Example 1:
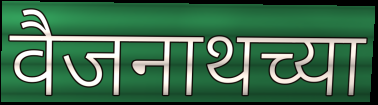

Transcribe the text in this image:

वैजनाथच्या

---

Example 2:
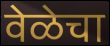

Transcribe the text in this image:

वेळेचा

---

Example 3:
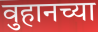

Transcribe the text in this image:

वुहानच्या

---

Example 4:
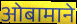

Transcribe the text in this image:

ओबामाने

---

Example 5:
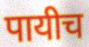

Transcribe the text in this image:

पायीच